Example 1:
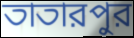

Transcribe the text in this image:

তাতারপুর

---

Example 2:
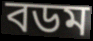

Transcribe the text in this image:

বডম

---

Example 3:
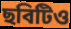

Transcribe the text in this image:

ছবিটিও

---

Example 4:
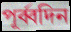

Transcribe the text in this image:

পূর্ব্বদিন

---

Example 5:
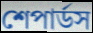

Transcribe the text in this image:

শেপার্ডস